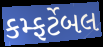
કમ્ફર્ટેબલ